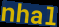
nhal